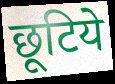
छूटिये